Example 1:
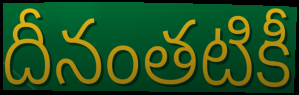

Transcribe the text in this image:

దీనంతటికీ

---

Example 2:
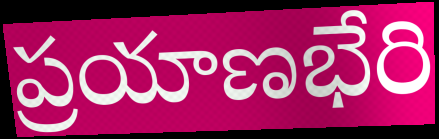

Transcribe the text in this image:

ప్రయాణభేరి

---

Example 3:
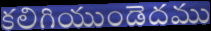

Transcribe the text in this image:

కలిగియుండెదము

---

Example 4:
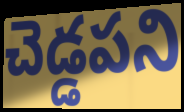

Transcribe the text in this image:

చెడ్డపని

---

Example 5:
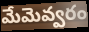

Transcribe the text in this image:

మేమెవ్వరం